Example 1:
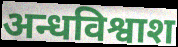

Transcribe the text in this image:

अन्धविश्वाश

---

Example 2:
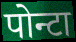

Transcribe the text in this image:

पोन्टा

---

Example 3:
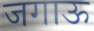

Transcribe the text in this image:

जगाऊ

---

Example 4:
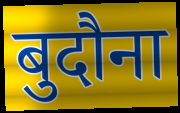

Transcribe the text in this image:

बुदौना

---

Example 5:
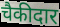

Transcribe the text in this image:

चैकीदार